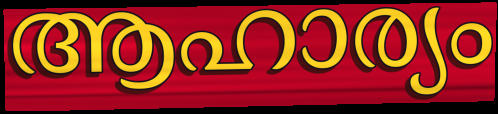
ആഹാര്യം